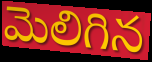
మెలిగిన